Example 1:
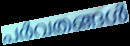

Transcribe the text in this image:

പർവതങ്ങൾ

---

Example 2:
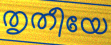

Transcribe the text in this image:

തൃതീയേ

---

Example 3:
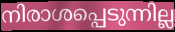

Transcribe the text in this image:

നിരാശപ്പെടുന്നില്ല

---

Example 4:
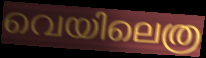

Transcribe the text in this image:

വെയിലെത്ര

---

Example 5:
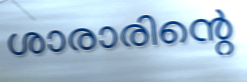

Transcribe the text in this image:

ശാരാരിന്റെ